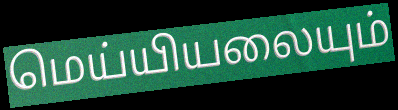
மெய்யியலையும்